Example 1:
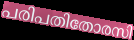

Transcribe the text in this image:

പരിപതിതോരസി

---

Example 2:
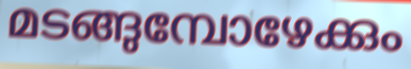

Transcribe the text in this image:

മടങ്ങുമ്പോഴേക്കും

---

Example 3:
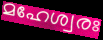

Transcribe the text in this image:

മഹേശ്വരഃ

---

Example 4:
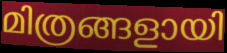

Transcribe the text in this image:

മിത്രങ്ങളായി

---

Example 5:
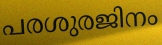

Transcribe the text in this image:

പരശുരജിനം